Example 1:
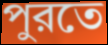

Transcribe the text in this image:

পুরতে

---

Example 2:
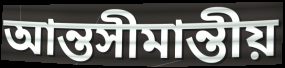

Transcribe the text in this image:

আন্তসীমান্তীয়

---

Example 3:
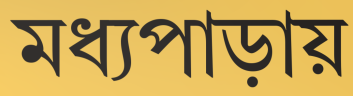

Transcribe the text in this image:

মধ্যপাড়ায়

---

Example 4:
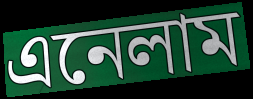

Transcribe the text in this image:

এনেলাম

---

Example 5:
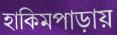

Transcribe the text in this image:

হাকিমপাড়ায়